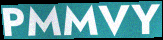
PMMVY